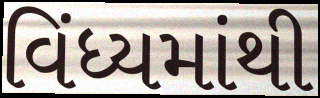
વિંધ્યમાંથી